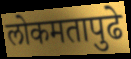
लोकमतापुढे